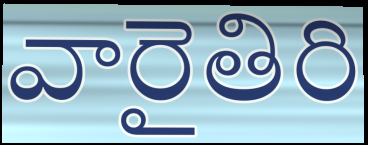
వారైతిరి